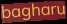
bagharu